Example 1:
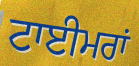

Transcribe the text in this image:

ਟਾਈਮਰਾਂ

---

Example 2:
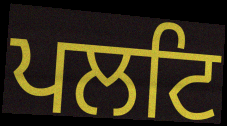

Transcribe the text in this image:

ਪਲਟਿ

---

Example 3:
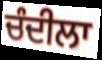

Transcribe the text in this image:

ਚੰਦੀਲਾ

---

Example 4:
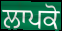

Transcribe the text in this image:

ਲਾਪਕੋ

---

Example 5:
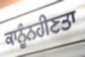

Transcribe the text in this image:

ਕਾਨੂੰਨਹੀਣਤਾ